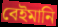
বেইমানি